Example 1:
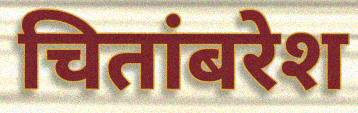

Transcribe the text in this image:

चितांबरेश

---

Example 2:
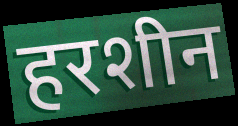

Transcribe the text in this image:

हरशीन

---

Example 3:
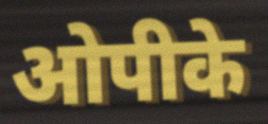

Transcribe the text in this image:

ओपीके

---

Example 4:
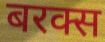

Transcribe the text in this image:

बरक्स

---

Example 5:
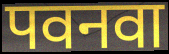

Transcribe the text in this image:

पवनवा